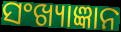
ସଂଖ୍ୟାଜ୍ଞାନ